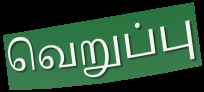
வெறுப்பு